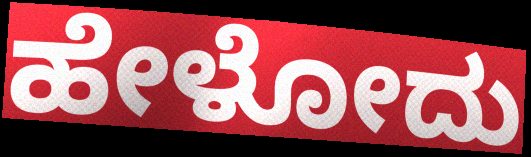
ಹೇಳೋದು